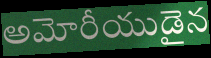
అమోరీయుడైన